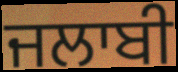
ਜਲਾਬੀ